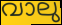
വാലു